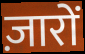
ज़ारों